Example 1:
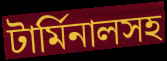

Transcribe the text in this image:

টার্মিনালসহ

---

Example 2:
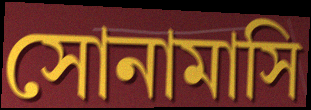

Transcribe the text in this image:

সোনামাসি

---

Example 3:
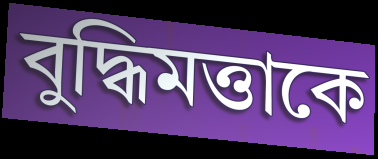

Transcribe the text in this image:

বুদ্ধিমত্তাকে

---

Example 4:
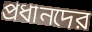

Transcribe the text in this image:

প্রধানদের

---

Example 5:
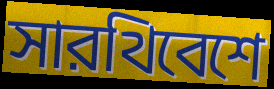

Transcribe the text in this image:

সারথিবেশে